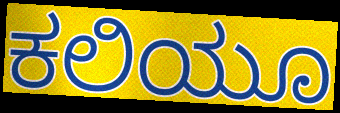
ಕಲಿಯೂ